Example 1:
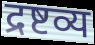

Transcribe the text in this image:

द्रष्टव्य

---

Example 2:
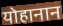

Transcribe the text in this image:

योहानान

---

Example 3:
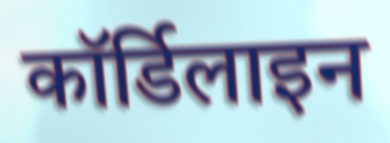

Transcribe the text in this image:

कॉर्डिलाइन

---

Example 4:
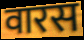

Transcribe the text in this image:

वारस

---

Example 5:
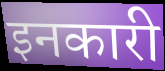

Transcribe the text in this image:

इनकारी